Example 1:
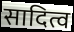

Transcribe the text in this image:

सादित्व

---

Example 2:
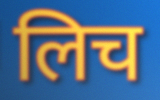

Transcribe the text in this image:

लिच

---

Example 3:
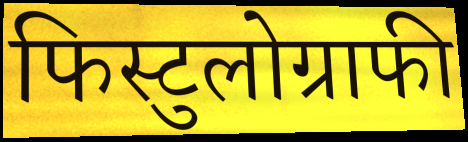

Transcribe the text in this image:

फिस्टुलोग्राफी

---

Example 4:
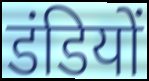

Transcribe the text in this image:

डंडियों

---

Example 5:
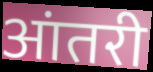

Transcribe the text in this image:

आंतरी